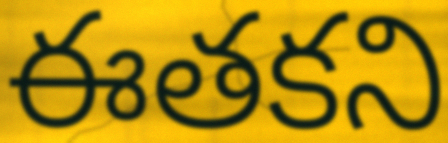
ఈతకని